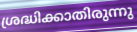
ശ്രദ്ധിക്കാതിരുന്നു